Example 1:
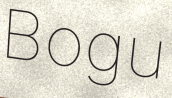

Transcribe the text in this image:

Bogu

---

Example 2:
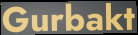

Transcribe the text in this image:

Gurbakt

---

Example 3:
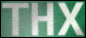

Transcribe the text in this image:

THX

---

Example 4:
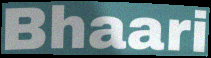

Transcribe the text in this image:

Bhaari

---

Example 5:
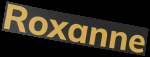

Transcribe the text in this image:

Roxanne